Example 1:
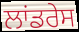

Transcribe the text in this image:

ਲਾਂਡਰੇਸ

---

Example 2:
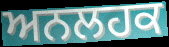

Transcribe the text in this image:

ਅਨਲਹਕ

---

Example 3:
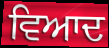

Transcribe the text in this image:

ਵਿਆਦ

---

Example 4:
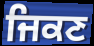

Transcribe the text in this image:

ਜਿਕਣ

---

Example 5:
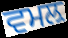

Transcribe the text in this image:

ਵਮਲ਼